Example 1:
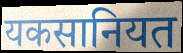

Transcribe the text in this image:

यकसानियत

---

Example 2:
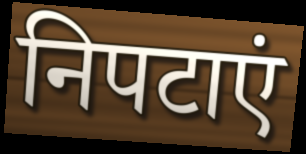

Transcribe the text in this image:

निपटाएं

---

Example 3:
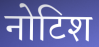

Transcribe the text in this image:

नोटिश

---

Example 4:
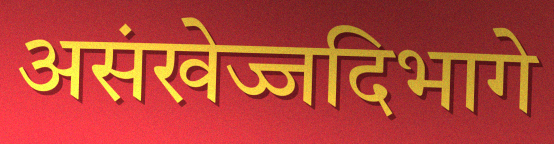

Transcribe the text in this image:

असंखेज्जदिभागे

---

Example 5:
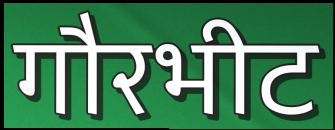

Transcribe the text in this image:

गौरभीट